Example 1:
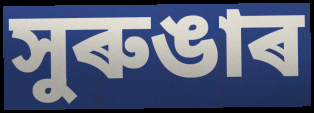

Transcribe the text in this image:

সুৰুঙাৰ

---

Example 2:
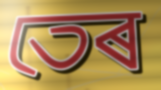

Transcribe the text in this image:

তেৰ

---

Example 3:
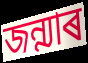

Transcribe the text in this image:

জন্মাৰ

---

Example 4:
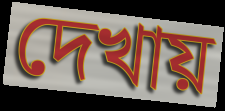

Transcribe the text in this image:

দেখায়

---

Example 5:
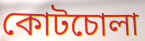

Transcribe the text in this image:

কোটচোলা